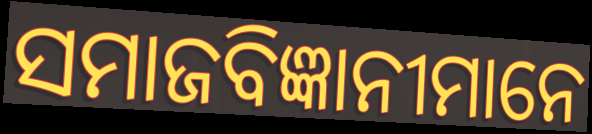
ସମାଜବିଜ୍ଞାନୀମାନେ